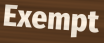
Exempt